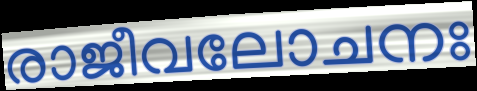
രാജീവലോചനഃ